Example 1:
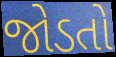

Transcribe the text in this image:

જોડતો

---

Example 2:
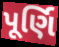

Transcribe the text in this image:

પૂર્ણિ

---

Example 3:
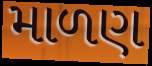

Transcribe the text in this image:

માળણ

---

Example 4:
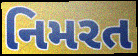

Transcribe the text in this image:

નિમરત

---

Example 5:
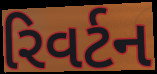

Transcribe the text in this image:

રિવર્ટન